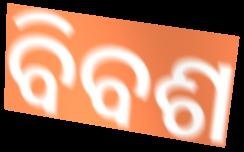
ବିବଶ